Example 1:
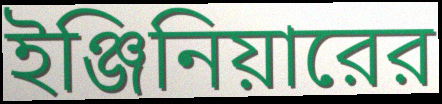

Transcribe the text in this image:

ইঞ্জিনিয়ারের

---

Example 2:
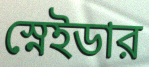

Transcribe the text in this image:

স্নেইডার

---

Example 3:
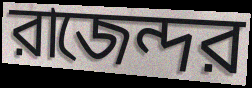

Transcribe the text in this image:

রাজেন্দর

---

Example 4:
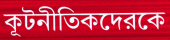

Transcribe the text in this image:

কূটনীতিকদেরকে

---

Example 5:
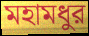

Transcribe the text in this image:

মহামধুর